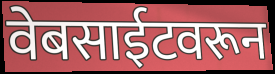
वेबसाईटवरून